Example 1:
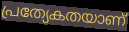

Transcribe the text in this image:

പ്രത്യേകതയാണ്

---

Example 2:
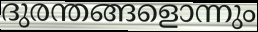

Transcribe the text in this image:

ദുരന്തങ്ങളൊന്നും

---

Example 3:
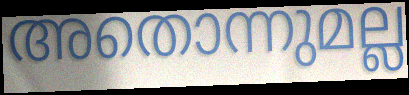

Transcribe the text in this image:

അതൊന്നുമല്ല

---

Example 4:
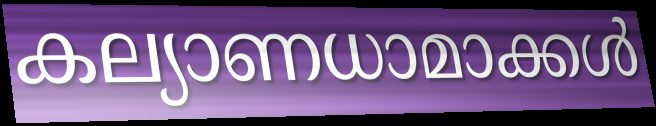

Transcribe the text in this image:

കല്യാണധാമാക്കൾ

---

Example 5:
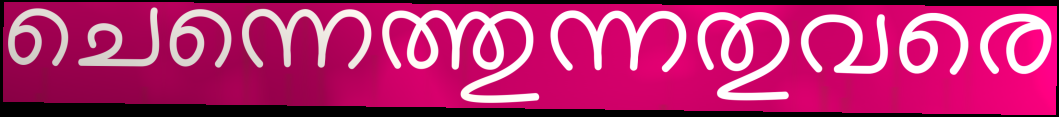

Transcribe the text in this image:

ചെന്നെത്തുന്നതുവരെ